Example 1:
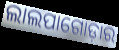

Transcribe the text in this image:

ଲାଲପାଗୋଡ଼ାର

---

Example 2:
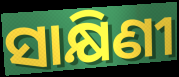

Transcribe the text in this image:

ସାକ୍ଷିଣୀ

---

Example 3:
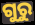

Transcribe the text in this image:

ଗୁରୁ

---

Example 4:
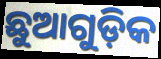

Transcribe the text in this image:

ଛୁଆଗୁଡ଼ିକ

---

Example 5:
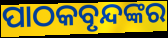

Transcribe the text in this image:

ପାଠକବୃନ୍ଦଙ୍କର